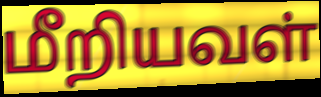
மீறியவள்